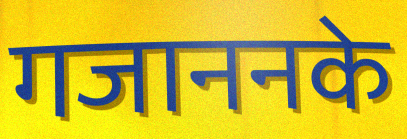
गजाननके